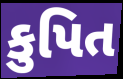
કુપિત